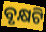
ବୃକ୍ଷଟି